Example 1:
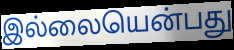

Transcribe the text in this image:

இல்லையென்பது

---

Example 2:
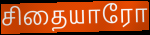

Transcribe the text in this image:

சிதையாரோ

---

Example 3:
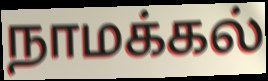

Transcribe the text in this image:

நாமக்கல்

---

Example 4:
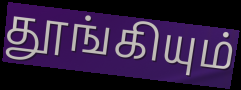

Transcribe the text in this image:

தூங்கியும்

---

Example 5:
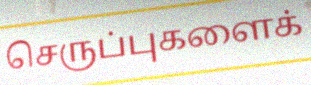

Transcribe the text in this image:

செருப்புகளைக்